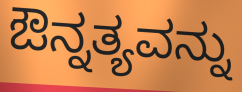
ಔನ್ನತ್ಯವನ್ನು